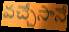
వచ్చేసానే